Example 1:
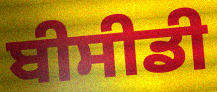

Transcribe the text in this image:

ਬੀਸੀਡੀ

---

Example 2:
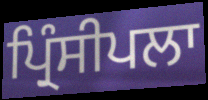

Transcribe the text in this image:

ਪ੍ਰਿੰਸੀਪਲਾ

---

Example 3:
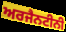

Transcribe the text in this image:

ਅਰਜੈਨਟੀਨੀ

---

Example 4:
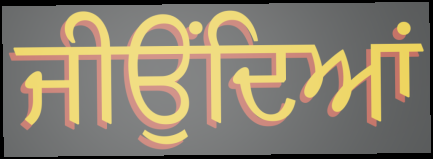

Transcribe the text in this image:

ਜੀਉਂਦਿਆਂ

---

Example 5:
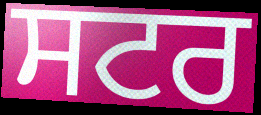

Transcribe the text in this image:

ਸਟਰ